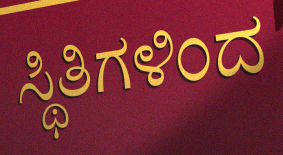
ಸ್ಥಿತಿಗಳಿಂದ